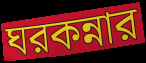
ঘরকন্নার